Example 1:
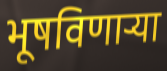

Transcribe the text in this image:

भूषविणाऱ्या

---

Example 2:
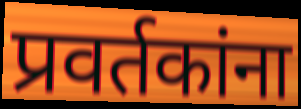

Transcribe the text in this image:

प्रवर्तकांना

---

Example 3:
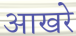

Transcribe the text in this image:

आखरे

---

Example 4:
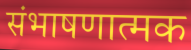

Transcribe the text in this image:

संभाषणात्मक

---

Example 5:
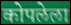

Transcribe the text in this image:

कोपलेला